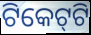
ଟିକେଟ୍‌ଟି